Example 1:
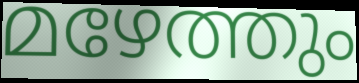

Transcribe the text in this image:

മഴേത്തും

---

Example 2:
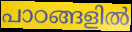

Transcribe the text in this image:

പാഠങ്ങളിൽ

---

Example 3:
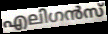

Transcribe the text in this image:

എലിഗൻസ്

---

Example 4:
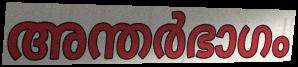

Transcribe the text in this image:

അന്തർഭാഗം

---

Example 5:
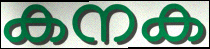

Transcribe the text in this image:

കനക